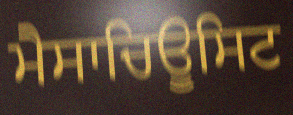
ਮੈਸਾਚਿਊਸਿਟ